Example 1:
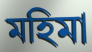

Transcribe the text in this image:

মহিমা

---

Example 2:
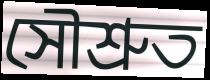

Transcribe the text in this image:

সৌশ্ৰুত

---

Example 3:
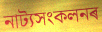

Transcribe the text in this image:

নাট্যসংকলনৰ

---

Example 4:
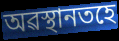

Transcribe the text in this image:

অৱস্থানতহে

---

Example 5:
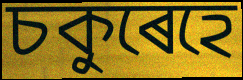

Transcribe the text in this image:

চকুৰেহে